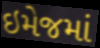
ઇમેજમાં